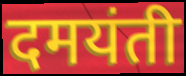
दमयंती